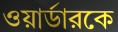
ওয়ার্ডারকে